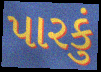
પારકું